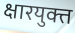
क्षारयुक्त